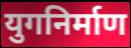
युगनिर्माण